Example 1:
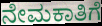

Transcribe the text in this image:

ನೇಮಕಾತಿಗೆ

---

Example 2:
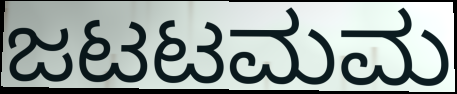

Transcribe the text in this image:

ಜಟಟಮಮ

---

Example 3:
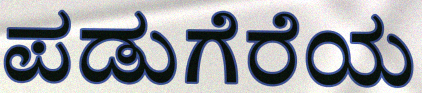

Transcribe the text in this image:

ಪಡುಗೆರೆಯ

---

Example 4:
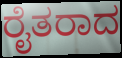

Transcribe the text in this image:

ರೈತರಾದ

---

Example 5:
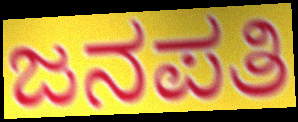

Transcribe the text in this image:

ಜನಪತಿ